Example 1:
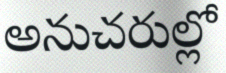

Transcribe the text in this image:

అనుచరుల్లో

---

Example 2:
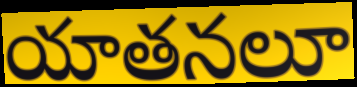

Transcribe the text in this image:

యాతనలూ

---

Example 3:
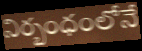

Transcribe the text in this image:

నిర్బంధంలోనే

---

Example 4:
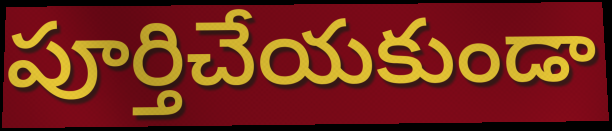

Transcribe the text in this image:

పూర్తిచేయకుండా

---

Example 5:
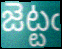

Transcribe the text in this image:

జెట్టఁ